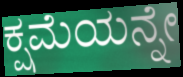
ಕ್ಷಮೆಯನ್ನೇ